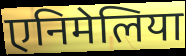
एनिमेलिया